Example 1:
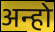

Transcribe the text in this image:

अन्हो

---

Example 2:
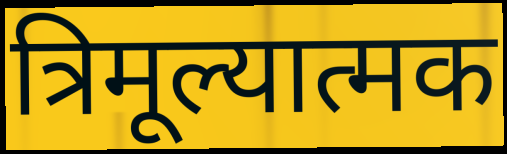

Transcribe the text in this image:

त्रिमूल्यात्मक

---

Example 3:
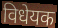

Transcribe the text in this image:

विधेयक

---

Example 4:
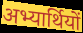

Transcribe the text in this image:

अभ्यार्थियों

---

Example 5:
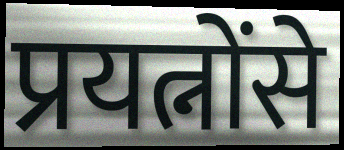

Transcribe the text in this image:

प्रयत्नोंसे